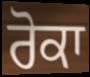
ਰੋਕਾ